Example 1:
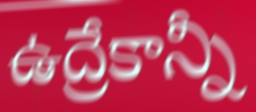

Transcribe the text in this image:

ఉద్రేకాన్నీ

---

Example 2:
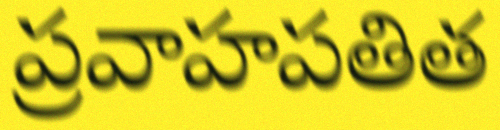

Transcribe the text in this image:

ప్రవాహపతిత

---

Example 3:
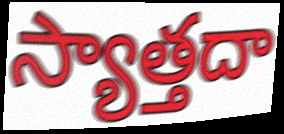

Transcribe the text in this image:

స్యాత్తదా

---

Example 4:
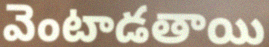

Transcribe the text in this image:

వెంటాడతాయి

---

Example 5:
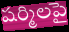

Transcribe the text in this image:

షర్మిలపై